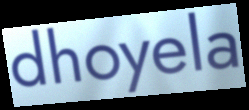
dhoyela